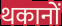
थकानों